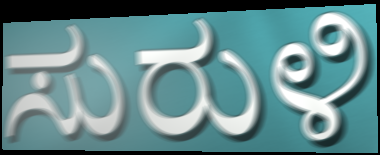
ಸುರುಳಿ